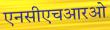
एनसीएचआरओ